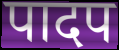
पादप